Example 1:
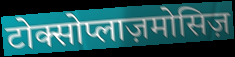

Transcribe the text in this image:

टोक्सोप्लाज़मोसिज़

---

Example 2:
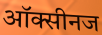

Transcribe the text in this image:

ऑक्सीनज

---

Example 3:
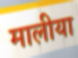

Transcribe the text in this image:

मालीया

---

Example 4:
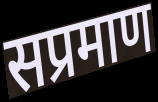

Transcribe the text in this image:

सप्रमाण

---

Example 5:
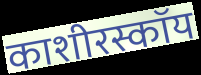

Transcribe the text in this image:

काशीरस्कॉय